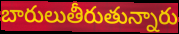
బారులుతీరుతున్నారు